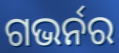
ଗଭର୍ନର